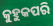
କୁହୁକପରି